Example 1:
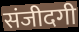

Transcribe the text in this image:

संजीदगी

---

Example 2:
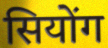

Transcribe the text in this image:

सियोंग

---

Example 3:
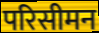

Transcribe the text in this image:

परिसीमन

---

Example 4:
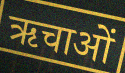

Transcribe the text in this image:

ऋचाओं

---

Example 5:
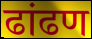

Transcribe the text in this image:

ढांढण